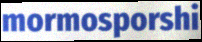
mormosporshi